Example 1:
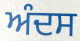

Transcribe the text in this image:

ਅੰਦਸ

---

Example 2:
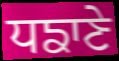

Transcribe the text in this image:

ਧਙਾਣੇ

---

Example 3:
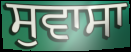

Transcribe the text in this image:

ਸੁਵਾਸਾ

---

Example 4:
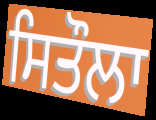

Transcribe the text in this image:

ਸਿਤੌਲਾ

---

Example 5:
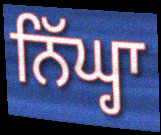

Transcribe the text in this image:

ਨਿੱਘ੍ਹਾ